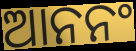
ଆନନଂ